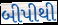
બીપીથી